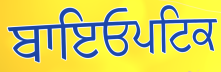
ਬਾਇਓਪਟਿਕ